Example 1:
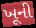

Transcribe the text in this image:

ખૂની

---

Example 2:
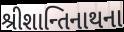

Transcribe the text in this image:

શ્રીશાન્તિનાથના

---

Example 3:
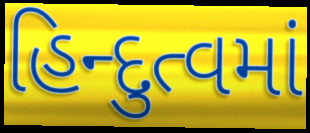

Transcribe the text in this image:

હિન્દુત્વમાં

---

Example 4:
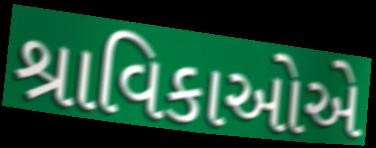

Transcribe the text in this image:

શ્રાવિકાઓએ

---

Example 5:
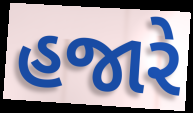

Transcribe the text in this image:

હજારે